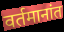
वर्तमानांत